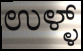
ಉಳ್ಳ್